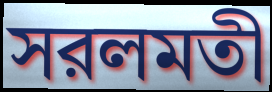
সরলমতী